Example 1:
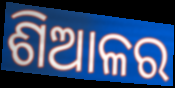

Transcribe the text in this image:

ଶିଆଳର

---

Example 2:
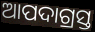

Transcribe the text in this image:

ଆପଦାଗ୍ରସ୍ତ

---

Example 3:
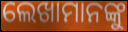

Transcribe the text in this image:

ଲେଖାମାନଙ୍କୁ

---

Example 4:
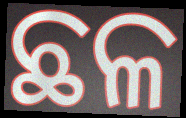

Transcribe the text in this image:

ଛଳ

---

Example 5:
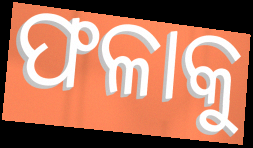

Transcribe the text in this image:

ଫଳାକୁ